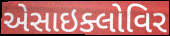
એસાઇક્લોવિર